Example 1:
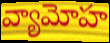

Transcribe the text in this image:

వ్యామోహ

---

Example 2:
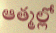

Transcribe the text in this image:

ఆత్మల్లో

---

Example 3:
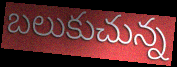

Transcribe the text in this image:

బలుకుచున్న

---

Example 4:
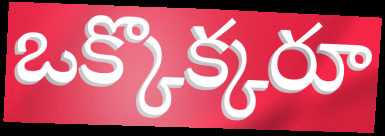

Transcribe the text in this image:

ఒక్కొక్కరూ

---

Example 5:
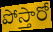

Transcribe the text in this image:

పోస్తారో